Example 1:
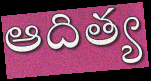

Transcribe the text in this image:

ఆదిత్య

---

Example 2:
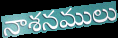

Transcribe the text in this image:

నాశనములు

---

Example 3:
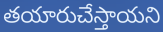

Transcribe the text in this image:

తయారుచేస్తాయని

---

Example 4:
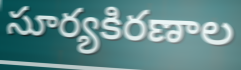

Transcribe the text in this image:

సూర్యకిరణాల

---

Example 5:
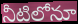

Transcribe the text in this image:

నీటిలోనూ